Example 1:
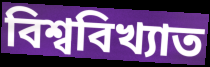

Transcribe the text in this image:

বিশ্ববিখ্যাত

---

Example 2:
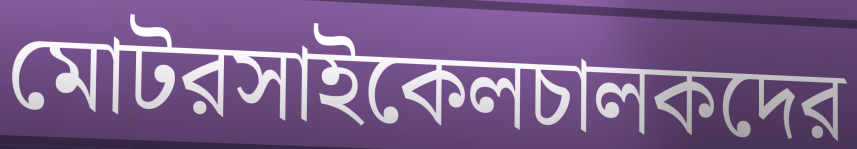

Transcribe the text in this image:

মোটরসাইকেলচালকদের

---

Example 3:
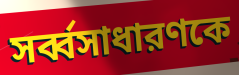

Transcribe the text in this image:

সর্ব্বসাধারণকে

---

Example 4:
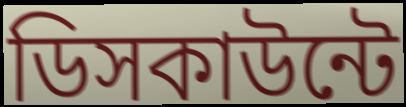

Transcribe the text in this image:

ডিসকাউন্টে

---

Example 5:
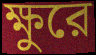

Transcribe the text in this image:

ক্ষুরে